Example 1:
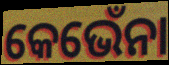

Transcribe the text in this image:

କେଭେଁନା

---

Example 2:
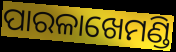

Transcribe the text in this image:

ପାରଳାଖେମଣ୍ଡି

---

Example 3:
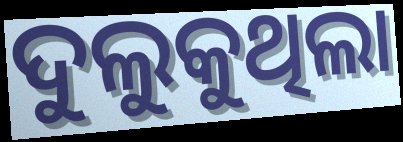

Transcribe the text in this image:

ଦୁଲୁକୁଥିଲା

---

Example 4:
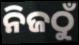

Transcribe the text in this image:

ନିଜଠୁଁ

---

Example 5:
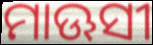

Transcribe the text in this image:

ମାଊସୀ